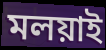
মলয়াই